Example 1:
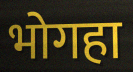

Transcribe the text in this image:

भोगहा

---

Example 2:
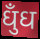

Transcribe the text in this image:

धुँध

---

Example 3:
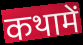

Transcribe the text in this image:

कथामें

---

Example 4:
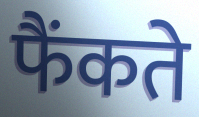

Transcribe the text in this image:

फैंकते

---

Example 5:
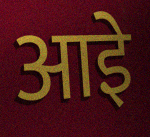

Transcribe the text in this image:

आइे